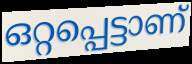
ഒറ്റപ്പെട്ടാണ്